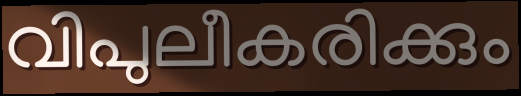
വിപുലീകരിക്കും